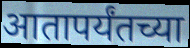
आतापर्यंतच्या